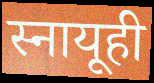
स्नायूही